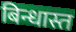
बिन्धास्त